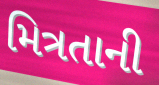
મિત્રતાની